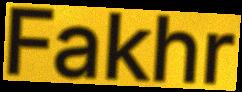
Fakhr